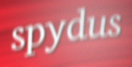
spydus